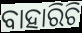
ବାହାରିଚି